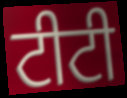
ਟੀਟੀ